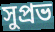
সুপ্রভ